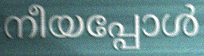
നീയപ്പോൾ